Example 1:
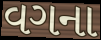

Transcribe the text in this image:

વગના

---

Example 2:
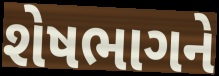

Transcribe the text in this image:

શેષભાગને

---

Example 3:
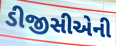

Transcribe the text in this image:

ડીજીસીએની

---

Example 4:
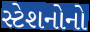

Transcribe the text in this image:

સ્ટેશનોનો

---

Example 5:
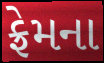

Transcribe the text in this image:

ફ્રેમના